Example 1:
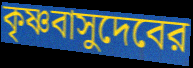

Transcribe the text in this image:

কৃষ্ণবাসুদেবের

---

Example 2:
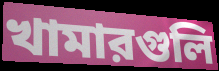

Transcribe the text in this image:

খামারগুলি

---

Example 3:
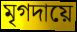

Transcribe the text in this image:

মৃগদায়ে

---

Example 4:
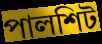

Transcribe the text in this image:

পালশিট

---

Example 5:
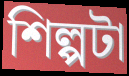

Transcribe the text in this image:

শিল্পটা